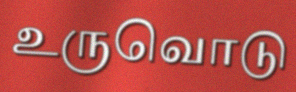
உருவொடு